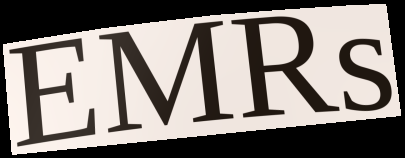
EMRs